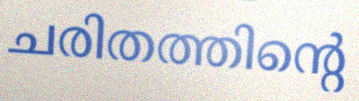
ചരിതത്തിന്റെ